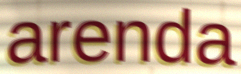
arenda